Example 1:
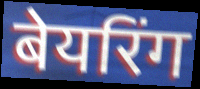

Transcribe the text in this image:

बेयरिंग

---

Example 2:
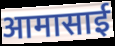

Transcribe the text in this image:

आमासाई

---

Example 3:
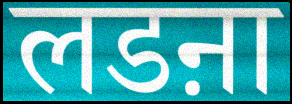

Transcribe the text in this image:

लडऩा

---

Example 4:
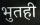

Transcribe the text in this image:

भुतही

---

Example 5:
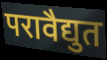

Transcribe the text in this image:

परावैद्युत